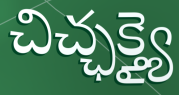
చిచ్ఛక్త్యై